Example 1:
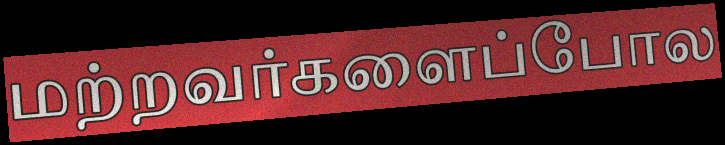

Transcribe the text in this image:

மற்றவர்களைப்போல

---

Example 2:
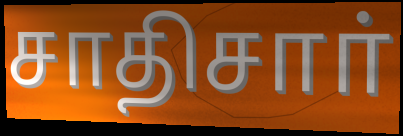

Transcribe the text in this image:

சாதிசார்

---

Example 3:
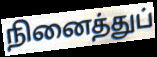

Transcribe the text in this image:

நினைத்துப்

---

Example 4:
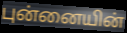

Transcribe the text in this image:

புன்னையின்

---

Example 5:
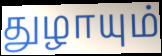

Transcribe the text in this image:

துழாயும்